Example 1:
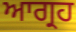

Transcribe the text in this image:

ਆਗ੍ਰਹ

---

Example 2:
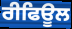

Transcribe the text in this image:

ਰੀਫਿਊਲ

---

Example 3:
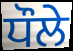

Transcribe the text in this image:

ਧੌਲੇ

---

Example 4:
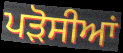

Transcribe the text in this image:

ਪੜੋਸੀਆਂ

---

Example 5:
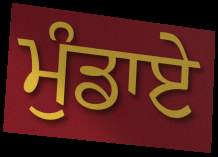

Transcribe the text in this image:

ਮੁੰਡਾਏ